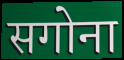
सगोना